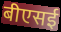
बीएसई